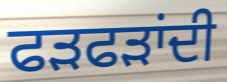
ਫੜਫੜਾਂਦੀ